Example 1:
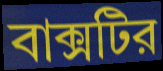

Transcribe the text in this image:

বাক্সটির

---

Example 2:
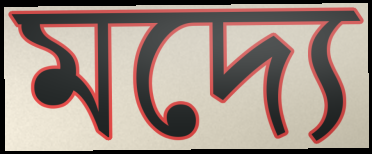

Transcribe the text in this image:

মদ্যে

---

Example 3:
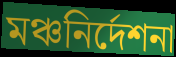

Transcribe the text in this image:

মঞ্চনির্দেশনা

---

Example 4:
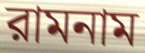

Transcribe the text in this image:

রামনাম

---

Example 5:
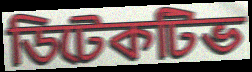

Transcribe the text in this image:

ডিটেকটিভ